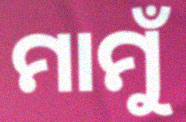
ମାମୁଁ